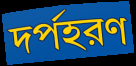
দর্পহরণ